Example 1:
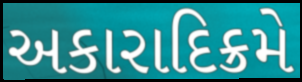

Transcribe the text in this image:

અકારાદિક્રમે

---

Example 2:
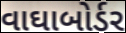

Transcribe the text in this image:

વાઘાબોર્ડર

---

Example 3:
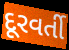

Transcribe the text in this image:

દૂરવર્તી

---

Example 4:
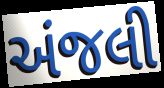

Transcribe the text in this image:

અંજલી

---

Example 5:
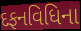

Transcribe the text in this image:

દફનવિધિના